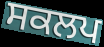
ਸਕਲਪ